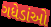
ગધેડાંઓ